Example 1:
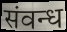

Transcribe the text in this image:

संवन्ध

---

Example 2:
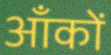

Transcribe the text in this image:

आँकों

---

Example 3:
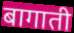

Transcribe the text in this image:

बागाती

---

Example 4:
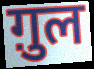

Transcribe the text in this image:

ग़ुल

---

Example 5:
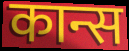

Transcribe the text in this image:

कान्‍स